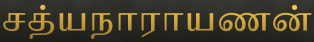
சத்யநாராயணன்